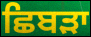
ਛਿਬੜਾ